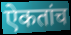
ऐकतांच